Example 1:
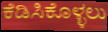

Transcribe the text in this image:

ಕೆಡಿಸಿಕೊಳ್ಳಲು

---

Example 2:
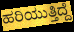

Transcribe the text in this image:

ಹರಿಯುತ್ತಿದ್ದೆ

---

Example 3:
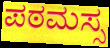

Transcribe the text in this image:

ಪಠಮಸ್ಸ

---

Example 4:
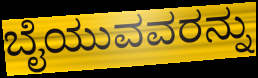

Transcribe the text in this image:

ಬೈಯುವವರನ್ನು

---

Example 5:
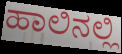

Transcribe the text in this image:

ಹಾಲಿನಲ್ಲಿ